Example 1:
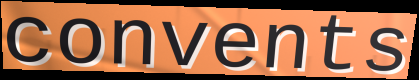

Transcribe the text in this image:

convents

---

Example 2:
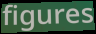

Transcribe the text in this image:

figures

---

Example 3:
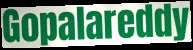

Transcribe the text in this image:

Gopalareddy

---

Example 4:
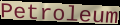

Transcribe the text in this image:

Petroleum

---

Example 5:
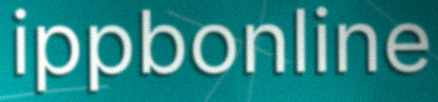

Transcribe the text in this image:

ippbonline